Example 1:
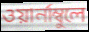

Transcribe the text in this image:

ওয়ার্নাম্বুলে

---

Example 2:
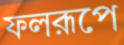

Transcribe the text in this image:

ফলরূপে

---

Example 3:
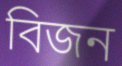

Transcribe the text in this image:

বিজন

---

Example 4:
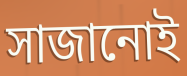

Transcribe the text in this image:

সাজানোই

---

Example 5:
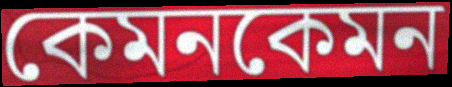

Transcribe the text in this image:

কেমনকেমন